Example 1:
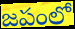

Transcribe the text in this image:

జపంలో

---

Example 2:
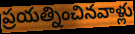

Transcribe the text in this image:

ప్రయత్నించినవాళ్లు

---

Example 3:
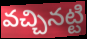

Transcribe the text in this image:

వచ్చినట్టి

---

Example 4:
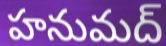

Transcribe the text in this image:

హనుమద్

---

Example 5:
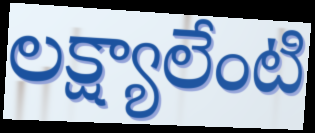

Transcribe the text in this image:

లక్ష్యాలేంటి